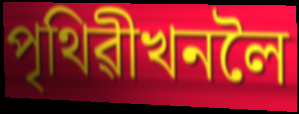
পৃথিৱীখনলৈ